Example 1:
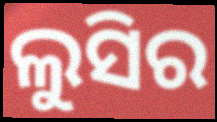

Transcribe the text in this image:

ଲୁସିର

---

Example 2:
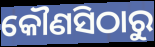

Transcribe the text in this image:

କୌଣସିଠାରୁ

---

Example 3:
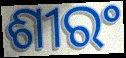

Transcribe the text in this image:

ଶୀରଂ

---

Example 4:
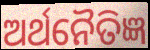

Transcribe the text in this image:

ଅର୍ଥନୈତିଜ୍ଞ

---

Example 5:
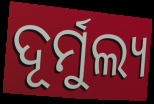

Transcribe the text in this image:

ଦୂର୍ମୁଲ୍ୟ